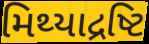
મિથ્યાદ્રષ્ટિ